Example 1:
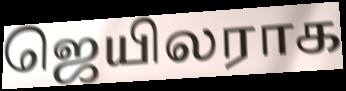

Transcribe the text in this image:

ஜெயிலராக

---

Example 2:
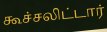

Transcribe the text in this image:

கூச்சலிட்டார்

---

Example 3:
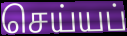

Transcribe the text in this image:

செய்யப்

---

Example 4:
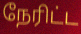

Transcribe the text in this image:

நேரிட்ட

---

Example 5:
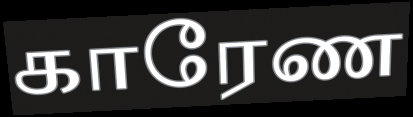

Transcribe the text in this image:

காரேண